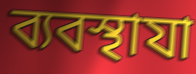
ব্যবস্থাযা